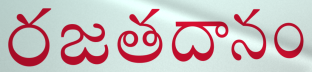
రజతదానం